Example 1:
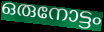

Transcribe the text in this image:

ഒരുനോട്ടം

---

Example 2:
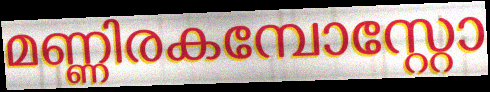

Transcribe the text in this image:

മണ്ണിരകമ്പോസ്റ്റോ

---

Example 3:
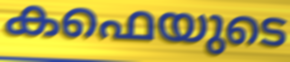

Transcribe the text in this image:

കഫെയുടെ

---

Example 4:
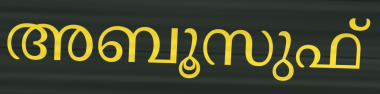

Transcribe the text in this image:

അബൂസുഫ്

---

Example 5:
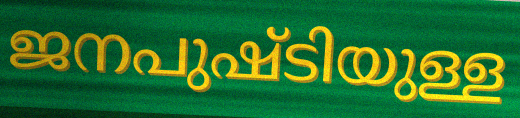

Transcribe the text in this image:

ജനപുഷ്ടിയുള്ള